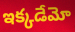
ఇక్కడేమో